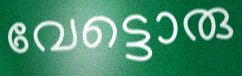
വേട്ടൊരു